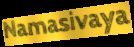
Namasivaya